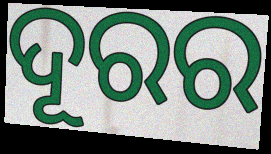
ଦୂରର